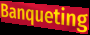
Banqueting